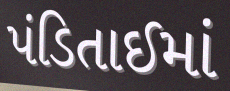
પંડિતાઈમાં